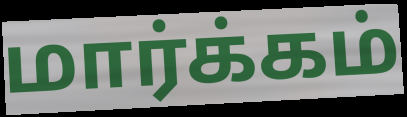
மார்க்கம்